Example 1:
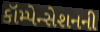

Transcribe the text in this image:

કૉમ્પેન્સેશનની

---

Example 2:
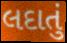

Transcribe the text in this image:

લદાતું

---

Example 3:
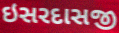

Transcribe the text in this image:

ઇસરદાસજી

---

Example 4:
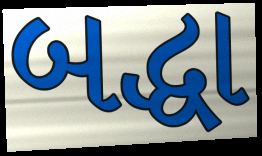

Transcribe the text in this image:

બદ્ધા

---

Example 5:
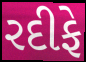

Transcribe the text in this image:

રદીફે